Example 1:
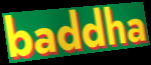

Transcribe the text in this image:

baddha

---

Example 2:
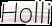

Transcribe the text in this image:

Holli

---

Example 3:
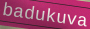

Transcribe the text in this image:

badukuva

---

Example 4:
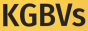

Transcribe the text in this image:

KGBVs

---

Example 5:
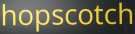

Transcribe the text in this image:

hopscotch